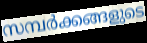
സമ്പർക്കങ്ങളുടെ